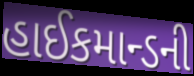
હાઈકમાન્ડની